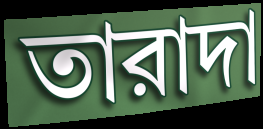
তারাদা